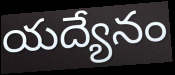
యద్యేనం